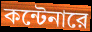
কন্টেনারে